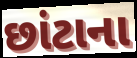
છાંટાના